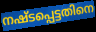
നഷ്ടപ്പെട്ടതിനെ